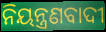
ନିୟନ୍ତ୍ରଣବାଦୀ